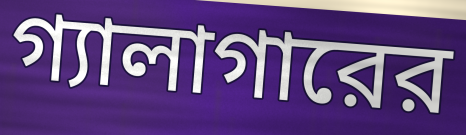
গ্যালাগারের